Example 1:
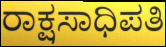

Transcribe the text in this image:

ರಾಕ್ಷಸಾಧಿಪತಿ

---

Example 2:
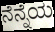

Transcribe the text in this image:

ನೆನ್ನೆಯ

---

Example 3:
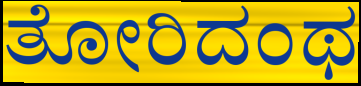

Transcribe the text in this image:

ತೋರಿದಂಥ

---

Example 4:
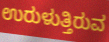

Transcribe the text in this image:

ಉರುಳುತ್ತಿರುವ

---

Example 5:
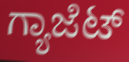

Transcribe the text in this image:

ಗ್ಯಾಜೆಟ್